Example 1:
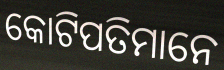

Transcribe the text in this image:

କୋଟିପତିମାନେ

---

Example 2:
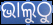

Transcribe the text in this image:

ଭାଲୁଠୁ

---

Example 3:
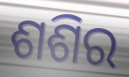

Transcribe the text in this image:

ଶଶିର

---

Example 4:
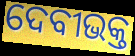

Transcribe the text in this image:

ଦେବୀଭକ୍ତ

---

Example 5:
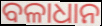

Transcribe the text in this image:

ବଳାଧାନ